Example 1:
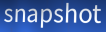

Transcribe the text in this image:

snapshot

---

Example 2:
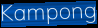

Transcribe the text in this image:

Kampong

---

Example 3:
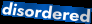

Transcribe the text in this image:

disordered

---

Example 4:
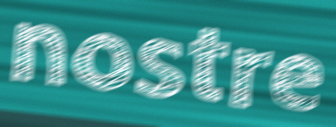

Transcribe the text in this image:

nostre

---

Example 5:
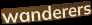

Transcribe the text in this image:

wanderers